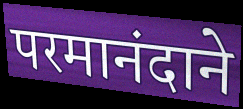
परमानंदाने